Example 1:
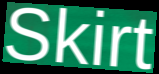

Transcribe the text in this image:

Skirt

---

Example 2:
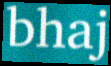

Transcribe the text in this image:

bhaj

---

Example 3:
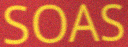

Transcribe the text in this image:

SOAS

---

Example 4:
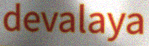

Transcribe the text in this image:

devalaya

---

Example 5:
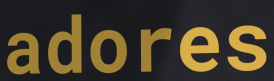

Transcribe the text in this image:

adores